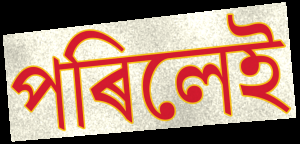
পৰিলেই